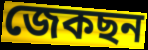
জেকছন